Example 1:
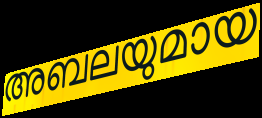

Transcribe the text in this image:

അബലയുമായ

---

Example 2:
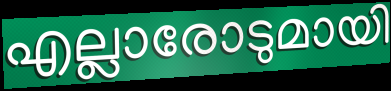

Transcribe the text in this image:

എല്ലാരോടുമായി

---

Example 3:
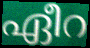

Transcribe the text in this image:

ഏീറ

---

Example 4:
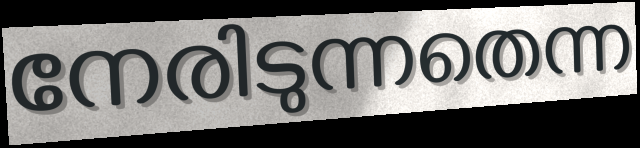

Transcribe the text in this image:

നേരിടുന്നതെന്ന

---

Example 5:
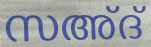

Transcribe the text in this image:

സഅ്ദ്